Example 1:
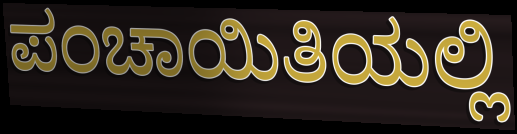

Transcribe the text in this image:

ಪಂಚಾಯಿತಿಯಲ್ಲಿ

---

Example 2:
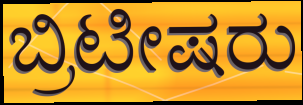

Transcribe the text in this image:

ಬ್ರಿಟೀಷರು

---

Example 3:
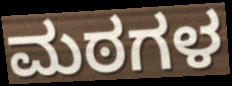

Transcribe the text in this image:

ಮಠಗಳ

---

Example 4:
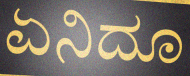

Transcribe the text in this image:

ಏನಿದೂ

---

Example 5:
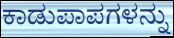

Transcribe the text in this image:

ಕಾಡುಪಾಪಗಳನ್ನು